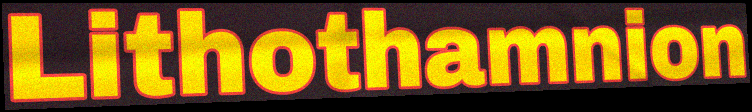
Lithothamnion